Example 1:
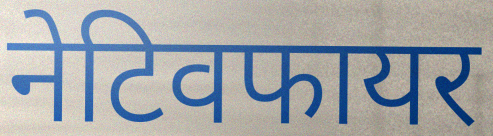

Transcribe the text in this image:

नेटिवफायर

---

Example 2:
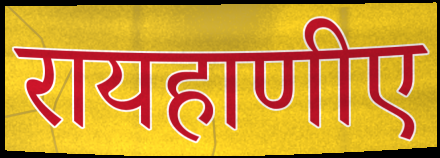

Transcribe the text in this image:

रायहाणीए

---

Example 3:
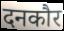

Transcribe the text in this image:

दनकौर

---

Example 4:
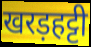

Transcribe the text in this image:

खरड़हट्टी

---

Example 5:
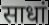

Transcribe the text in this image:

साधां